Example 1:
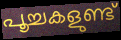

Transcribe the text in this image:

പൂച്ചകളുണ്ട്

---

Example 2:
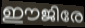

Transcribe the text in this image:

ഈജിരേ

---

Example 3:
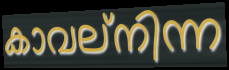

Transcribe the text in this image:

കാവല്നിന്ന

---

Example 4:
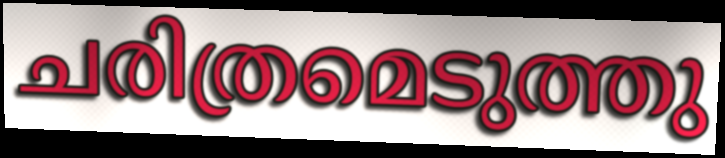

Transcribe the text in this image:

ചരിത്രമെടുത്തു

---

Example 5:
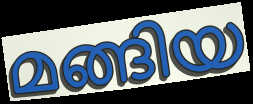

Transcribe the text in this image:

മങ്ങിയ